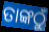
ତାଙ୍କଠୁଁ